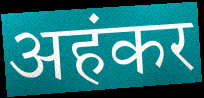
अहंकर